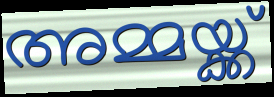
അമ്മയ്ക്ക്